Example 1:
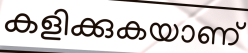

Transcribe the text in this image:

കളിക്കുകയാണ്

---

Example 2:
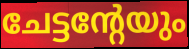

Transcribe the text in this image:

ചേട്ടന്റേയും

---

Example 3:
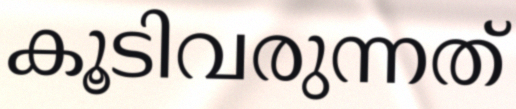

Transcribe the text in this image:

കൂടിവരുന്നത്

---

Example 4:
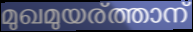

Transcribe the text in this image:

മുഖമുയര്ത്താന്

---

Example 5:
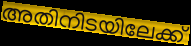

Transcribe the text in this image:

അതിനിടയിലേക്ക്